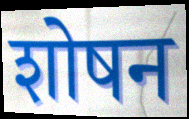
शोषन